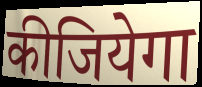
कीजियेगा